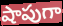
షాపుగా